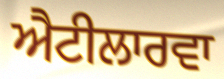
ਐਟੀਲਾਰਵਾ